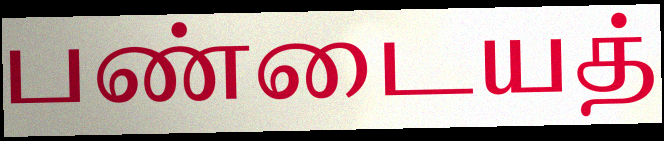
பண்டையத்